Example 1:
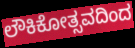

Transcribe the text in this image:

ಲೌಕಿಕೋತ್ಸವದಿಂದ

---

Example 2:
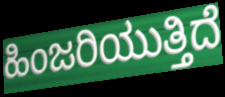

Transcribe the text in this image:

ಹಿಂಜರಿಯುತ್ತಿದೆ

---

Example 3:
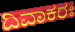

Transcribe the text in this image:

ದಿವಾಕರಃ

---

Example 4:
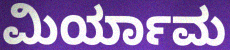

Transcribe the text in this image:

ಮಿರ್ಯಾಮ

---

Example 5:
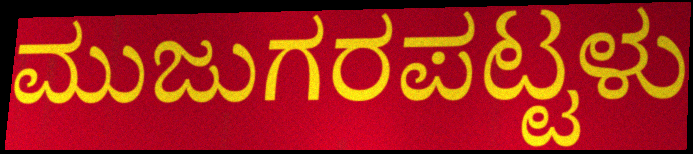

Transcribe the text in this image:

ಮುಜುಗರಪಟ್ಟಳು